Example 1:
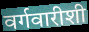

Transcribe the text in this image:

वर्गवारीशी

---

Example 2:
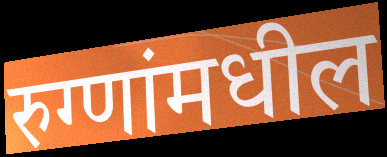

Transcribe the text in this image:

रुग्णांमधील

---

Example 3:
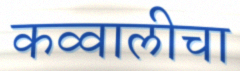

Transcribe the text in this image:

कव्वालीचा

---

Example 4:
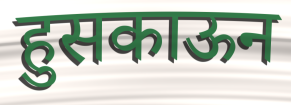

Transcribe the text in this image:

हुसकाऊन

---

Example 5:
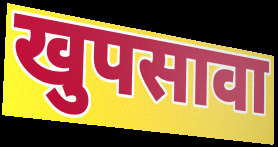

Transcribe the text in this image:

खुपसावा